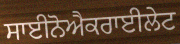
ਸਾਈਨੋਐਕਰਾਈਲੇਟ